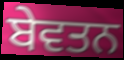
ਬੇਵਤਨ